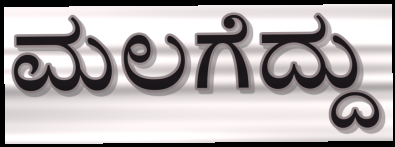
ಮಲಗೆದ್ದು